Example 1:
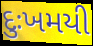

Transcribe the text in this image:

દુઃખમયી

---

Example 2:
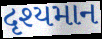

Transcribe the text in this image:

દૃશ્યમાન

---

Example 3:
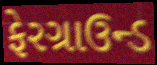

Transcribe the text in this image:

ફેરગ્રાઉન્ડ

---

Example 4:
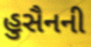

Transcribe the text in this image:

હુસૈનની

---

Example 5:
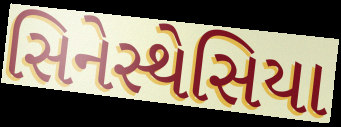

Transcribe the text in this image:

સિનેસ્થેસિયા